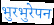
भुरभुरेपन